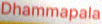
Dhammapala